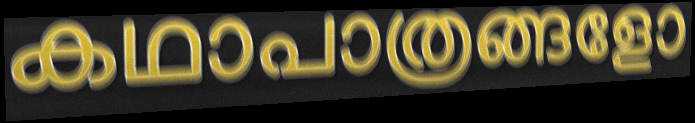
കഥാപാത്രങ്ങളോ